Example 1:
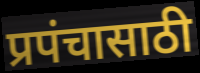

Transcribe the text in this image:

प्रपंचासाठी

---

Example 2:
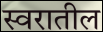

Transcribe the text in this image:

स्वरातील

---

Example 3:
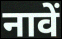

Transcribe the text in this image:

नावें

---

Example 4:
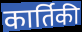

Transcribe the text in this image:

कार्तिकी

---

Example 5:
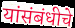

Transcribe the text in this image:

यांसंबंधीचे